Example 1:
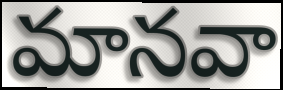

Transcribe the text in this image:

మానవా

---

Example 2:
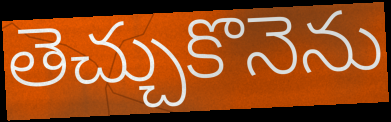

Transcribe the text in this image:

తెచ్చుకొనెను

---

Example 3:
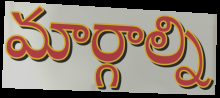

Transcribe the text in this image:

మార్గాల్ని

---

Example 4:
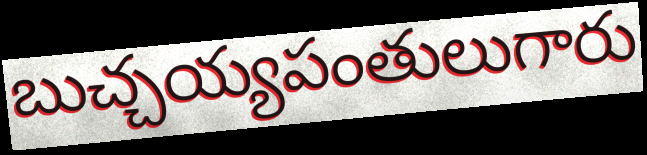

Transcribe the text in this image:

బుచ్చయ్యపంతులుగారు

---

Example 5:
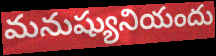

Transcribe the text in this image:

మనుష్యునియందు